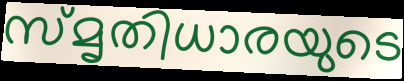
സ്മൃതിധാരയുടെ